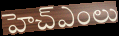
హెచ్ఎంలు